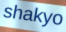
shakyo